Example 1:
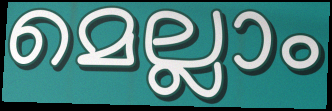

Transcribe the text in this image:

മെല്ലാം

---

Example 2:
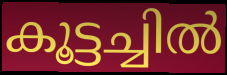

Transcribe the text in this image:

കൂട്ടച്ചിൽ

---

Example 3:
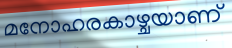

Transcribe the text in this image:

മനോഹരകാഴ്ചയാണ്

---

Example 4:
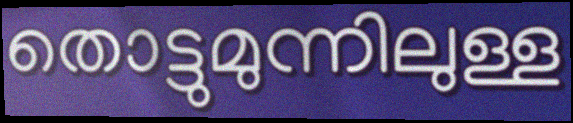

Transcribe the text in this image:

തൊട്ടുമുന്നിലുള്ള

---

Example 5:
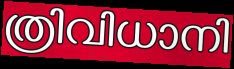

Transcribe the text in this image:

ത്രിവിധാനി